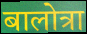
बालोत्रा